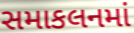
સમાકલનમાં